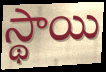
స్థాయి